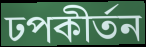
ঢপকীর্তন